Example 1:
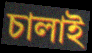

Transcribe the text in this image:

চালাই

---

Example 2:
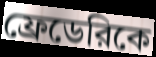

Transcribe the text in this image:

ফ্রেডেরিকে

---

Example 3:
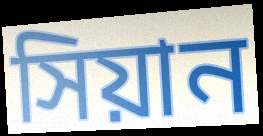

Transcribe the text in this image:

সিয়ান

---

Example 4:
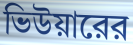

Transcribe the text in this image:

ভিউয়ারের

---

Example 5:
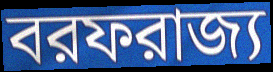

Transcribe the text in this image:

বরফরাজ্য